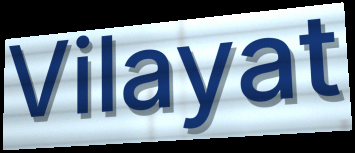
Vilayat